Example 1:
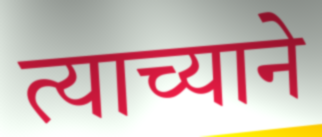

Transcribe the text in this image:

त्याच्याने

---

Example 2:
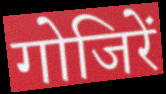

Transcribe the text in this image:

गोजिरें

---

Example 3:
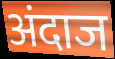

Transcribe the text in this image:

अंदाज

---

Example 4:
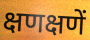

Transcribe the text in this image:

क्षणक्षणें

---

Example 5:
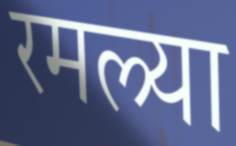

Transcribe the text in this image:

रमल्या